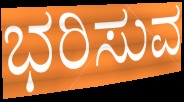
ಭರಿಸುವ